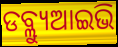
ଡବ୍ଲ୍ୟୁଆଇଭି